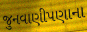
જુનવાણીપણાના